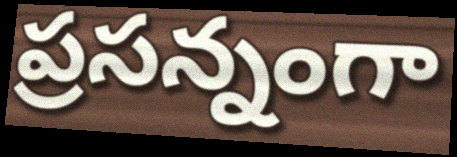
ప్రసన్నంగా